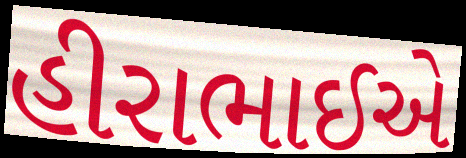
હીરાભાઈએ